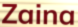
Zaina